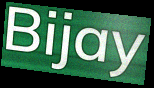
Bijay